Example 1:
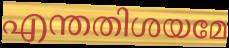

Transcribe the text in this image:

എന്തതിശയമേ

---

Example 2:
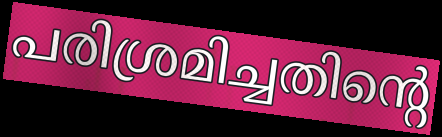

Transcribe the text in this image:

പരിശ്രമിച്ചതിന്റെ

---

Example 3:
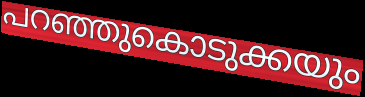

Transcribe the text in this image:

പറഞ്ഞുകൊടുക്കയും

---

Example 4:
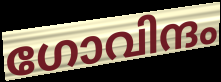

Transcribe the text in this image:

ഗോവിന്ദം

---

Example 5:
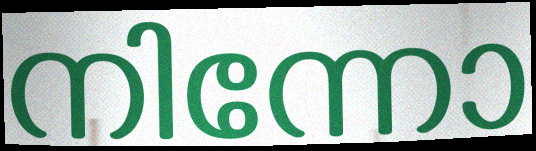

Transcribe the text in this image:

നിന്നോ